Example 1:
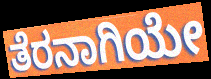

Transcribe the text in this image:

ತೆರನಾಗಿಯೇ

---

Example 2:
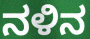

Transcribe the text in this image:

ನಳಿನ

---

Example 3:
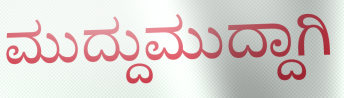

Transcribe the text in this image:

ಮುದ್ದುಮುದ್ದಾಗಿ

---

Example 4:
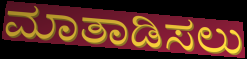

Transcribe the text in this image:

ಮಾತಾಡಿಸಲು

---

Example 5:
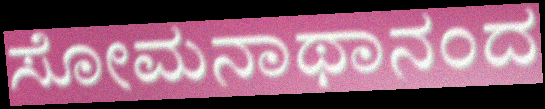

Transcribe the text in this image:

ಸೋಮನಾಥಾನಂದ